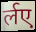
र्लए